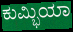
ಕುಮ್ಭಿಯಾ